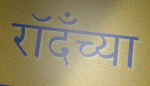
रॉदँच्या